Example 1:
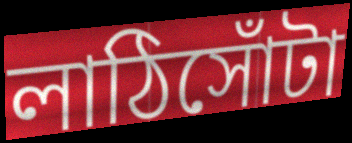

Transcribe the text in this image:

লাঠিসোঁটা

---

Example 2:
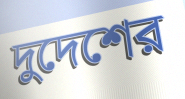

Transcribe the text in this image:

দুদেশের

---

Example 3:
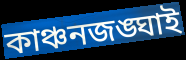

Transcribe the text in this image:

কাঞ্চনজঙ্ঘাই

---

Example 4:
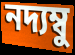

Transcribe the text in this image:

নদ্যম্বু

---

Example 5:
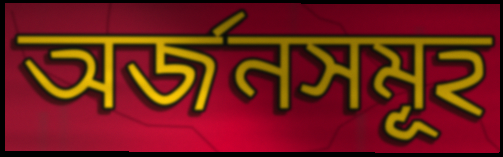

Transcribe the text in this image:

অর্জনসমূহ